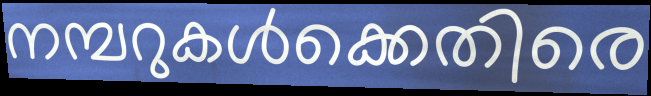
നമ്പറുകൾക്കെതിരെ